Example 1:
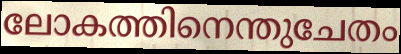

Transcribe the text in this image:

ലോകത്തിനെന്തുചേതം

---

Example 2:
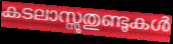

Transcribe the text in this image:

കടലാസ്സുതുണ്ടുകൾ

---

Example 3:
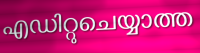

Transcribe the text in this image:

എഡിറ്റുചെയ്യാത്ത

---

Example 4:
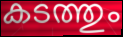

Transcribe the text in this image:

കടത്തും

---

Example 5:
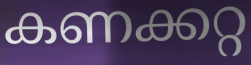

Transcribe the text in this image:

കണക്കറ്റ